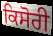
ਕਿਸੋਰੀ